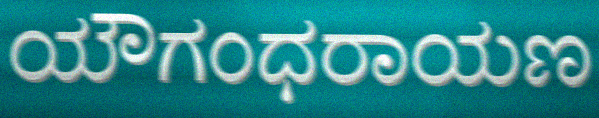
ಯೌಗಂಧರಾಯಣ